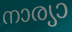
നാര്യാ